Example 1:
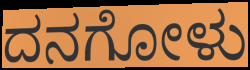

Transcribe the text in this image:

ದನಗೋಳು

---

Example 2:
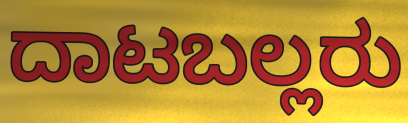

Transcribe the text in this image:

ದಾಟಬಲ್ಲರು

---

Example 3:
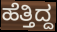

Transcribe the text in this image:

ಹೆತ್ತಿದ್ದ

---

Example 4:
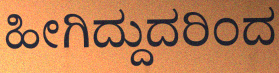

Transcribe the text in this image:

ಹೀಗಿದ್ದುದರಿಂದ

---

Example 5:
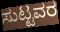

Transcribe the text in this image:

ಸುಟ್ಟವರ